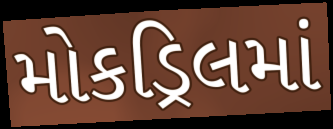
મોકડ્રિલમાં